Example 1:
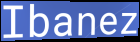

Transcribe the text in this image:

Ibanez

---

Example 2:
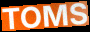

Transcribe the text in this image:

TOMS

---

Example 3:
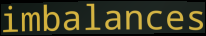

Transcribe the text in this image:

imbalances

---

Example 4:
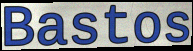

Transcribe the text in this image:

Bastos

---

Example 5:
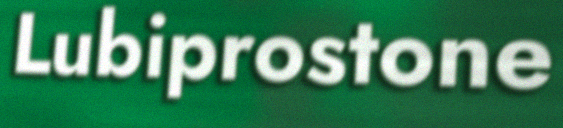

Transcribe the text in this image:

Lubiprostone